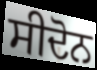
ਸੀਦੋਨ